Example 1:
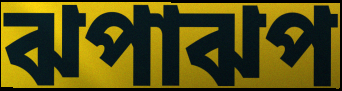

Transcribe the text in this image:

ঝপাঝপ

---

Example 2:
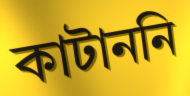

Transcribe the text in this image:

কাটাননি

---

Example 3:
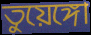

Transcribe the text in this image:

তুয়েঙ্গো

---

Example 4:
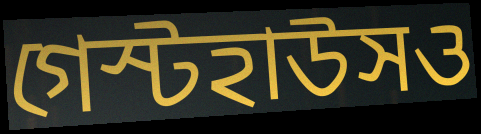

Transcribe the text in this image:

গেস্টহাউসও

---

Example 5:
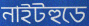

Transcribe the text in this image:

নাইটহুডে